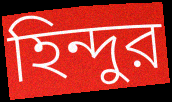
হিন্দুর